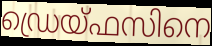
ഡ്രെയ്ഫസിനെ